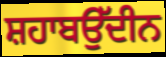
ਸ਼ਹਾਬਉੱਦੀਨ